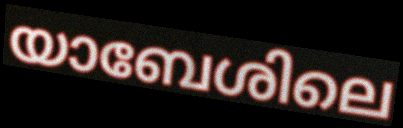
യാബേശിലെ